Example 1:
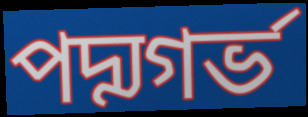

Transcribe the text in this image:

পদ্মগর্ভ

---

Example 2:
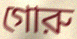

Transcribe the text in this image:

গোরু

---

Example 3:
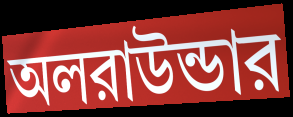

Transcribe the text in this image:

অলরাউন্ডার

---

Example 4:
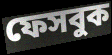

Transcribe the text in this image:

ফেসবুক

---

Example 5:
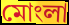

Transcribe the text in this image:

মোংলা